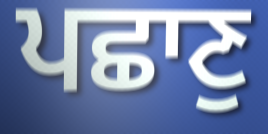
ਪਛਾਣੁ